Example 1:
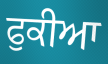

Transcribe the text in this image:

ਫੁਕੀਆ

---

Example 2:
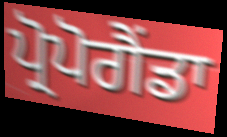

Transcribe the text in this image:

ਪ੍ਰੋਪੋਗੈਂਡਾ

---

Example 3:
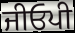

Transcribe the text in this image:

ਜੀਓਪੀ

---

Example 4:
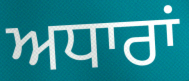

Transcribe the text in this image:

ਅਧਾਰਾਂ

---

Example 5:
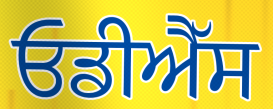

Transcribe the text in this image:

ਓਡੀਐੱਸ